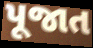
પૂજાત